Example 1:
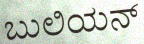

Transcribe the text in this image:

ಬುಲಿಯನ್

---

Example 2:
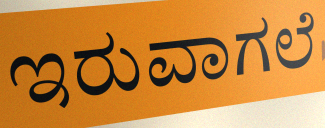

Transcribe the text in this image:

ಇರುವಾಗಲೆ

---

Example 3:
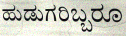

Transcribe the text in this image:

ಹುಡುಗರಿಬ್ಬರೂ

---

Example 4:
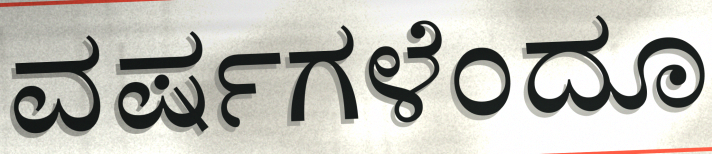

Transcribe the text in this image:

ವರ್ಷಗಳೆಂದೂ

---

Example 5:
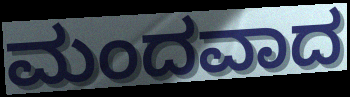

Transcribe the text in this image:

ಮಂದವಾದ